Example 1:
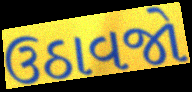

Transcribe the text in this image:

ઉઠાવજો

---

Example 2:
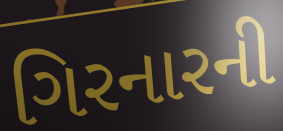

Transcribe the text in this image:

ગિરનારની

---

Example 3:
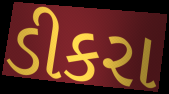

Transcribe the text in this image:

ડીકરા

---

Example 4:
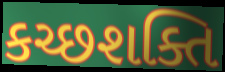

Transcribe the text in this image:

કચ્છશક્તિ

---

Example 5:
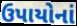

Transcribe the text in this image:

ઉપાયોનાં